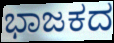
ಭಾಜಕದ